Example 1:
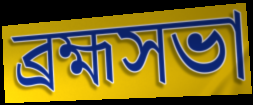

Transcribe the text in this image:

ব্রহ্মসভা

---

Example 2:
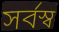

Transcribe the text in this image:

সর্বস্ব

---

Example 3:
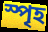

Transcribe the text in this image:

স্পৃহ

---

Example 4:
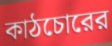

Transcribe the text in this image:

কাঠচোরের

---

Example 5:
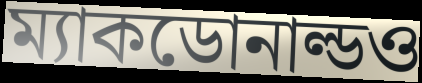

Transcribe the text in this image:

ম্যাকডোনাল্ডও